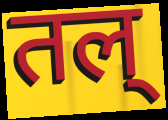
तल्